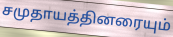
சமுதாயத்தினரையும்